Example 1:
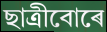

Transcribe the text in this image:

ছাত্ৰীবোৰে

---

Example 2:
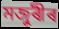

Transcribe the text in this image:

মজুৰীৰ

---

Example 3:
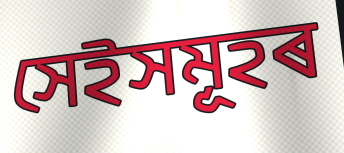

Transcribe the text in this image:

সেইসমূহৰ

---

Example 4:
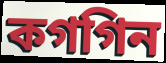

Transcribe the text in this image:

কগগিন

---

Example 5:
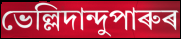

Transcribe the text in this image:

ভেল্লিদান্দুপাৰুৰ